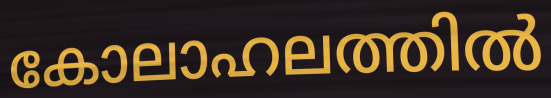
കോലാഹലത്തിൽ